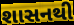
શાસનથી